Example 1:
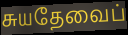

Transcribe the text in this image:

சுயதேவைப்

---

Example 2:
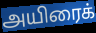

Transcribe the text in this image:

அயிரைக்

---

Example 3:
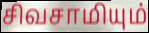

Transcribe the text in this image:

சிவசாமியும்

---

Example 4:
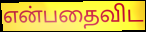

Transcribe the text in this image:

என்பதைவிட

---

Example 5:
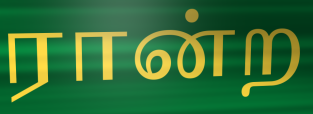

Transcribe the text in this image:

ரான்ற